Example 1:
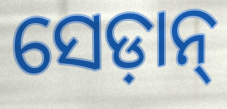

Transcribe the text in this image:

ସେଡ଼ାନ୍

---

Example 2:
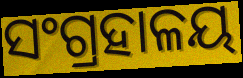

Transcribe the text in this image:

ସଂଗ୍ରହାଳୟ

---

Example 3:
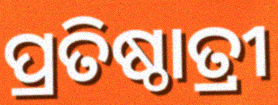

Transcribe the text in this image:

ପ୍ରତିଷ୍ଠାତ୍ରୀ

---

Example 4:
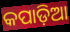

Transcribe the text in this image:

କପାଡ଼ିଆ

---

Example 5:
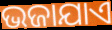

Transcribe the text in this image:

ଭଜାଯାଏ